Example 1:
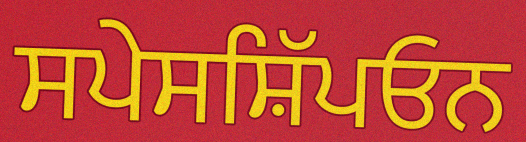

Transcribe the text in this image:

ਸਪੇਸਸ਼ਿੱਪਓਨ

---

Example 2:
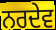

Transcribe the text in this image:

ਨਰਦੇਵ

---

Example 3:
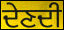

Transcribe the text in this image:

ਦੇਣਦੀ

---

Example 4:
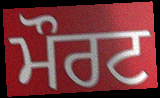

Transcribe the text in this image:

ਮੌਰਟ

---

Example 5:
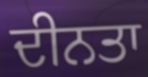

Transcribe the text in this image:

ਦੀਨਤਾ